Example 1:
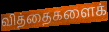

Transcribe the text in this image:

வித்தைகளைக்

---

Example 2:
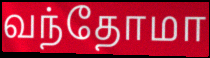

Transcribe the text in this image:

வந்தோமா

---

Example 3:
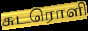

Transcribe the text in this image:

சுடரொளி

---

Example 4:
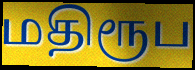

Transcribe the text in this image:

மதிரூப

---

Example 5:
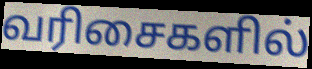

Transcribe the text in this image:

வரிசைகளில்